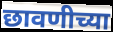
छावणीच्या